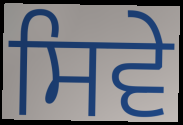
ਸਿਵੇ